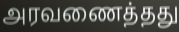
அரவணைத்தது